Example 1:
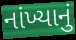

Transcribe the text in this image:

નાંખ્યાનું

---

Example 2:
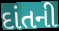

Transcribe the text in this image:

દાંતની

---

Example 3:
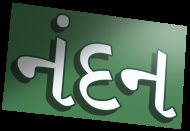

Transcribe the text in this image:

નંદન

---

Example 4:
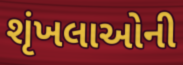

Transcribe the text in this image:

શૃંખલાઓની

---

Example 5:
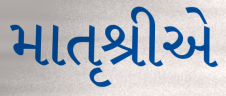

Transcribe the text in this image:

માતૃશ્રીએ